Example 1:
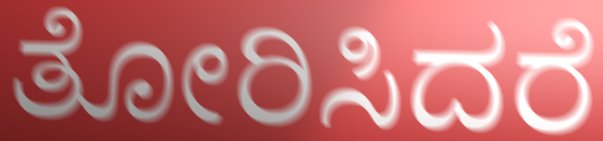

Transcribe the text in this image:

ತೋರಿಸಿದರೆ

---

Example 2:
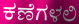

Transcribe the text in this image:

ಕಣೆಗಳಲಿ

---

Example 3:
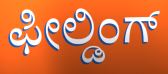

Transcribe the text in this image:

ಫೀಲ್ಡಿಂಗ್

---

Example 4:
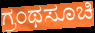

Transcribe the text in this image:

ಗ್ರಂಥಸೂಚಿ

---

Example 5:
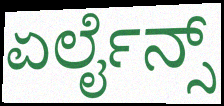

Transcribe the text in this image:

ಏರ್ಲೈನ್ಸ್